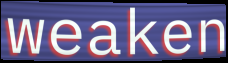
weaken